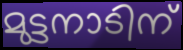
മുട്ടനാടിന്